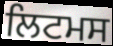
ਲਿਟਮਸ